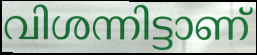
വിശന്നിട്ടാണ്